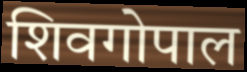
शिवगोपाल